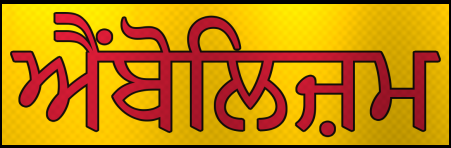
ਐਂਬੋਲਿਜ਼ਮ